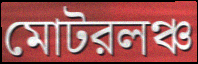
মোটরলঞ্চ